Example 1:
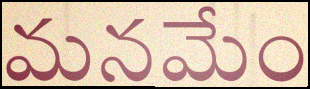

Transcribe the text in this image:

మనమేం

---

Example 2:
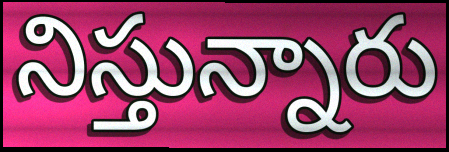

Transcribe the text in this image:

నిస్తున్నారు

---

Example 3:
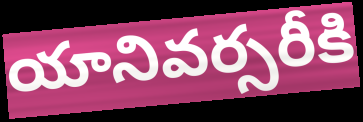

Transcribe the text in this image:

యానివర్సరీకి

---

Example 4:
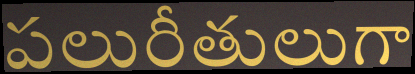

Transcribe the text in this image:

పలురీతులుగా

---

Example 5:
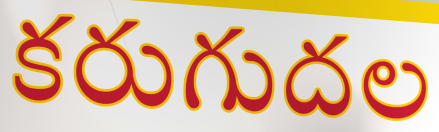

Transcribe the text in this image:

కరుగుదల